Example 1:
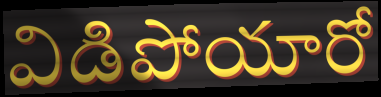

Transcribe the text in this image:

విడిపోయారో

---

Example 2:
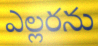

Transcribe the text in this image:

ఎల్లరను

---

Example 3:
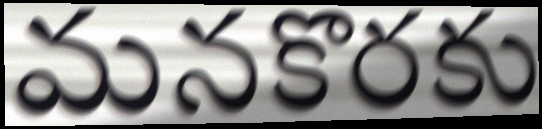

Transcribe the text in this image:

మనకొరకు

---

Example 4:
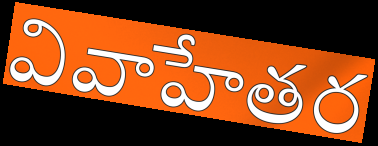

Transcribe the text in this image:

వివాహేతర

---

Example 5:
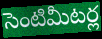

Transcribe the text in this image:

సెంటిమీటర్ల